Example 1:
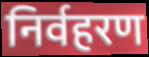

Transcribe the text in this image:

निर्वहरण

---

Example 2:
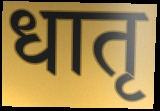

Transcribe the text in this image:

धातृ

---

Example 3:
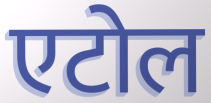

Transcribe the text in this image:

एटोल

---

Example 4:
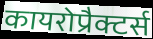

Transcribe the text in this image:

कायरोप्रैक्टर्स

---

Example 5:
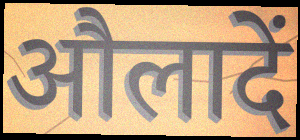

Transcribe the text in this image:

औलादें